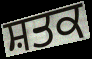
ਸ਼ਤਕ